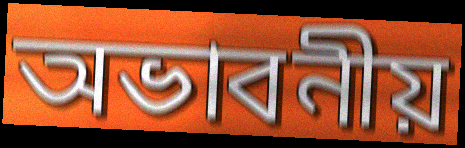
অভাবনীয়